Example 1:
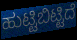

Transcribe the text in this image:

ಹುಟ್ಟಿಬಿಟ್ಟಿದೆ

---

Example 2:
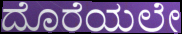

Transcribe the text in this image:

ದೊರೆಯಲೇ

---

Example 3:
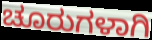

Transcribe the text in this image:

ಚೂರುಗಳಾಗಿ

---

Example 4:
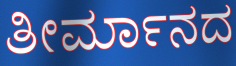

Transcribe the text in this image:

ತೀರ್ಮಾನದ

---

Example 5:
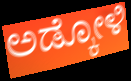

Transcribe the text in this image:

ಅಡ್ಕೋಳಿ